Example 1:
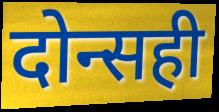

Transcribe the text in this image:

दोन्सही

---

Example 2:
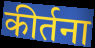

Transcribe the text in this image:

कीर्तना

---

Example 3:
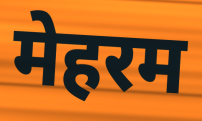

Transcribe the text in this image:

मेहरम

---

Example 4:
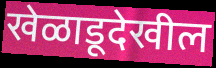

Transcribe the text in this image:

खेळाडूदेखील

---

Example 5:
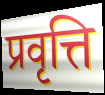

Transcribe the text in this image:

प्रवृत्ति